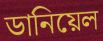
ডানিয়েল